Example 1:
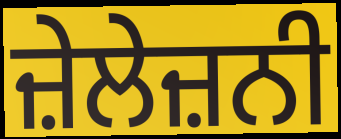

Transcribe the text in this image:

ਜ਼ੇਲੇਜ਼ਨੀ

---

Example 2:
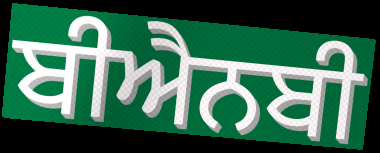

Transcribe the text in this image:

ਬੀਐਨਬੀ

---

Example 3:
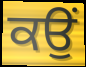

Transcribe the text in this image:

ਕਉਂ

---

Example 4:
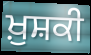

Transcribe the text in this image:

ਖ਼ੁਸ਼ਕੀ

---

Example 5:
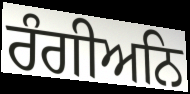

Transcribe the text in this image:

ਰੰਗੀਅਨਿ